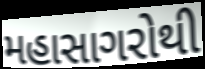
મહાસાગરોથી